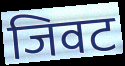
जिवट